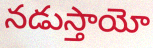
నడుస్తాయో